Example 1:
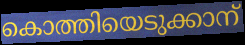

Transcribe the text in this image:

കൊത്തിയെടുക്കാന്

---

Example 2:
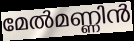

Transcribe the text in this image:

മേൽമണ്ണിൻ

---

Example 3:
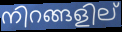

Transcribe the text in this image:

നിറങ്ങളില്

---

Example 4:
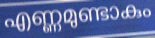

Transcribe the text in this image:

എണ്ണമുണ്ടാകും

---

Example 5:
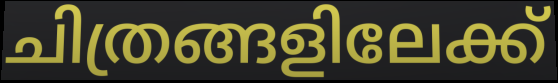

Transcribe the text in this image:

ചിത്രങ്ങളിലേക്ക്